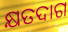
କ୍ଷତଦାଗ